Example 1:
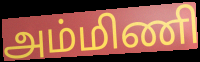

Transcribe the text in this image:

அம்மிணி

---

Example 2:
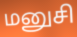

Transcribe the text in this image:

மனுசி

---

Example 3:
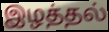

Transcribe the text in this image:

இழத்தல்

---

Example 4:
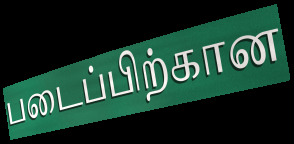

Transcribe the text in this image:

படைப்பிற்கான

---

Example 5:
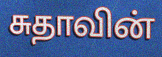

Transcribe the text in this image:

சுதாவின்